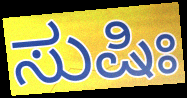
ಸುಷಿಃ